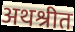
अथश्रीत